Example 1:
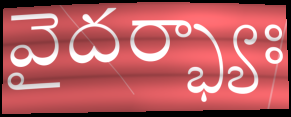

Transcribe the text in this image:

వైదర్భ్యాః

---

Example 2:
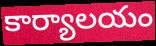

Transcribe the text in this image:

కార్యాలయం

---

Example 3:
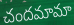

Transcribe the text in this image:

చందమామా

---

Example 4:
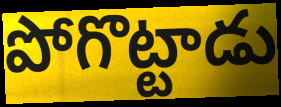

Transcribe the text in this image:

పోగొట్టాడు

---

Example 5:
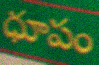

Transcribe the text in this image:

ధూపం